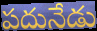
పదునేడు